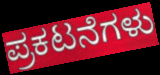
ಪ್ರಕಟನೆಗಳು